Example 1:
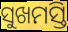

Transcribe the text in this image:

ସୁଖମସ୍ତି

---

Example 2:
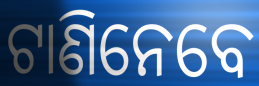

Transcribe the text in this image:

ଟାଣିନେବେ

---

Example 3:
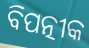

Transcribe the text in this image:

ବିପତ୍ନୀକ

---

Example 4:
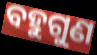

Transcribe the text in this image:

ବହୁଗୁଣ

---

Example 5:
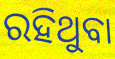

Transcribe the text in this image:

ରହିଥୁବା